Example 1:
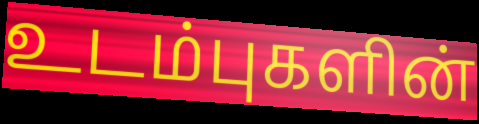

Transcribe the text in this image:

உடம்புகளின்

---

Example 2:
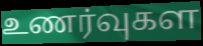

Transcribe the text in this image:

உணர்வுகள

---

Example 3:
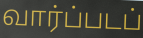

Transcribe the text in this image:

வார்ப்படப்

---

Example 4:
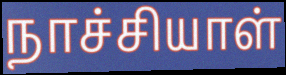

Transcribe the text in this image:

நாச்சியாள்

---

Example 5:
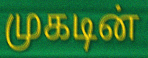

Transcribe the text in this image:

முகடின்